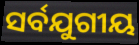
ସର୍ବଯୁଗୀୟ